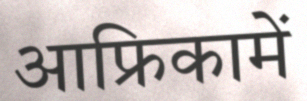
आफ्रिकामें